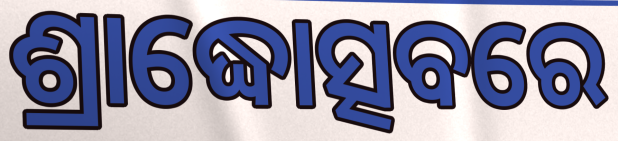
ଶ୍ରାଦ୍ଧୋତ୍ସବରେ